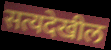
सत्यदेखील